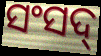
ସଂସଦ୍